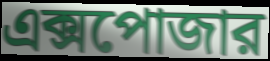
এক্সপোজার